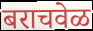
बराचवेळ